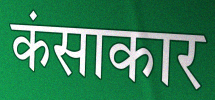
कंसाकार